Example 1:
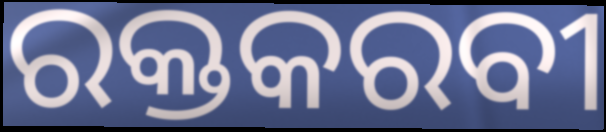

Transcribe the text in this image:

ରକ୍ତକରବୀ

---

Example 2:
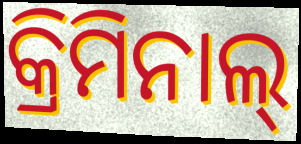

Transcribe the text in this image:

କ୍ରିମିନାଲ୍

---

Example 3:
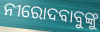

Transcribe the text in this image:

ନୀରୋଦବାବୁଙ୍କୁ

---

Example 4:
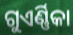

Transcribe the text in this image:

ଗୁଏର୍ଣ୍ଣିକା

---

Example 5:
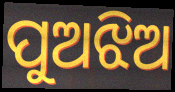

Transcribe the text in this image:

ପୁଅଝିଅ